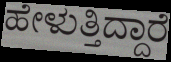
ಹೇಳುತ್ತಿದ್ದಾರೆ